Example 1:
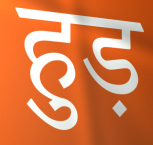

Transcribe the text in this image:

हुड़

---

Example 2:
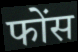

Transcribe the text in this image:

फोंस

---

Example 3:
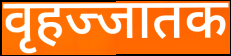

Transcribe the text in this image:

वृहज्जातक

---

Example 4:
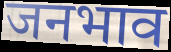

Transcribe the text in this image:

जनभाव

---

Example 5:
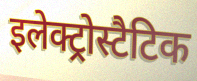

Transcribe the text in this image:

इलेक्ट्रोस्टैटिक